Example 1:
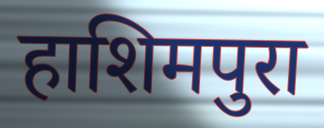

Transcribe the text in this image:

हाशिमपुरा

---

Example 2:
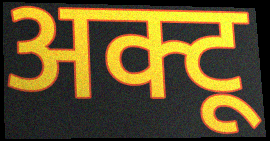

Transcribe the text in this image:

अक्टू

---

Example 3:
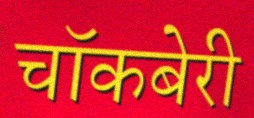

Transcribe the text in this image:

चॉकबेरी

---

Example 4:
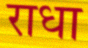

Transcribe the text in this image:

राधा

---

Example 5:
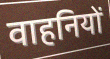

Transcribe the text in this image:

वाहनियों